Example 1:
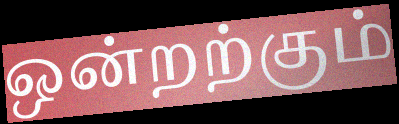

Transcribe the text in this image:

ஒன்றற்கும்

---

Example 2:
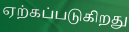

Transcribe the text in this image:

ஏற்கப்படுகிறது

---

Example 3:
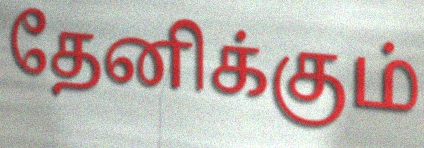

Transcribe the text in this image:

தேனிக்கும்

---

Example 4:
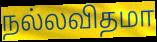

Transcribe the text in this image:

நல்லவிதமா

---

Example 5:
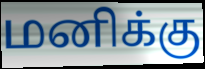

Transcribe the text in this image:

மனிக்கு